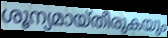
ശൂന്യമായ്തീരുകയും